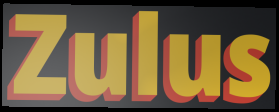
Zulus